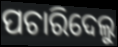
ପଚାରିଦେଲୁ